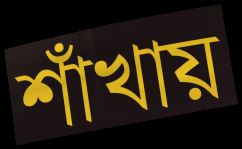
শাঁখায়